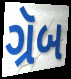
ગ્રૅબ